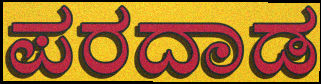
ಪರದಾಡ